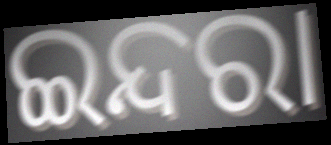
ଇନ୍ଦରା